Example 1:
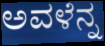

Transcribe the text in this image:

ಅವಳೆನ್ನ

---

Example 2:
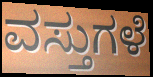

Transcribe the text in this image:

ವಸ್ತುಗಳೆ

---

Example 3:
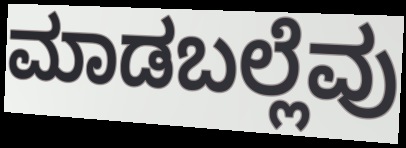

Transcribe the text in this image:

ಮಾಡಬಲ್ಲೆವು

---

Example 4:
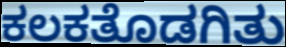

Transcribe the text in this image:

ಕಲಕತೊಡಗಿತು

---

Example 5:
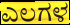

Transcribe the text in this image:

ಎಲಗಳ